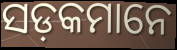
ସଡ଼କମାନେ